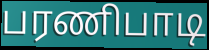
பரணிபாடி